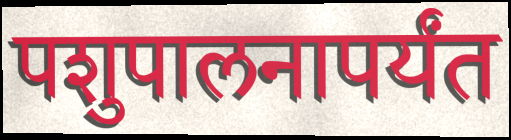
पशुपालनापर्यंत